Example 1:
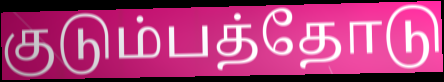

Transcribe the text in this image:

குடும்பத்தோடு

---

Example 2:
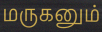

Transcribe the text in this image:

மருகனும்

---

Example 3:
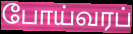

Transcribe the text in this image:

போய்வரப்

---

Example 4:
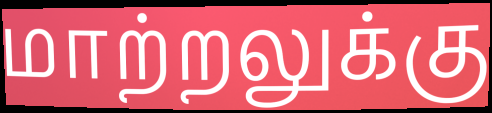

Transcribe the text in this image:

மாற்றலுக்கு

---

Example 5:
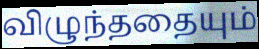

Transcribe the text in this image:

விழுந்ததையும்